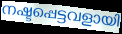
നഷ്ടപ്പെട്ടവളായി